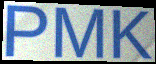
PMK